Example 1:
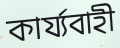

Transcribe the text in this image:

কাৰ্য্যবাহী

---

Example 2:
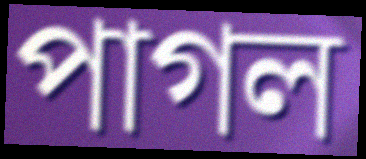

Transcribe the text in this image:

পাগল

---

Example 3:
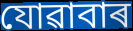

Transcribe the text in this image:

যোৱাবাৰ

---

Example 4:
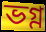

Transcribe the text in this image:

ভগ্ন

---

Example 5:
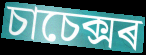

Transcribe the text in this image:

চাচেক্সৰ